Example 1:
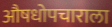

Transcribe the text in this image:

औषधोपचाराला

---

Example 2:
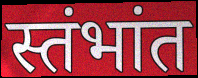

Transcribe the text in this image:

स्तंभांत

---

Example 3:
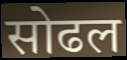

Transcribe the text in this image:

सोढल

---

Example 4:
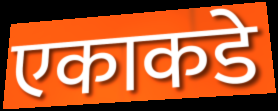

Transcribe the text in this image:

एकाकडे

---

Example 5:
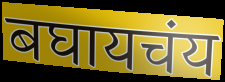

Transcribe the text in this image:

बघायचंय